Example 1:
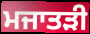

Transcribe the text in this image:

ਮਜਾਤੜੀ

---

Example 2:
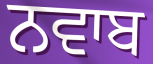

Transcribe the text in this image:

ਨਵਾਬ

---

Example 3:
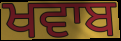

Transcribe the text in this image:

ਖਵਾਬ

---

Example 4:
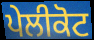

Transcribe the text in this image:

ਪੇਲੀਕੋਟ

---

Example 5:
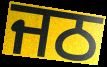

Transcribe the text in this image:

ਜਠ